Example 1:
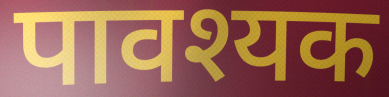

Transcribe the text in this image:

पावश्यक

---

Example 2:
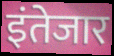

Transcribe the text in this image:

इंतेजार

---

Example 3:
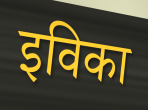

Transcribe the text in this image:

इविका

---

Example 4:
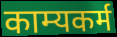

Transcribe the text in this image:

काम्यकर्म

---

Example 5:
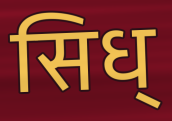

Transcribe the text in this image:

सिध्